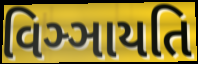
વિઞ્ઞાયતિ